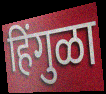
हिंगुळा